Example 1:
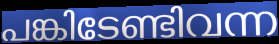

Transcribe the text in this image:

പങ്കിടേണ്ടിവന്ന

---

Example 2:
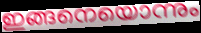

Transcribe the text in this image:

ഇങ്ങനെയൊന്നും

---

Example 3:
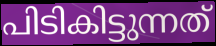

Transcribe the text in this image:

പിടികിട്ടുന്നത്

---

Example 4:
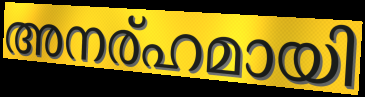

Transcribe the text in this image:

അനര്ഹമായി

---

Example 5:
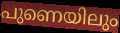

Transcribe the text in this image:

പുണെയിലും